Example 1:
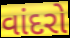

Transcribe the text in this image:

વાંદરો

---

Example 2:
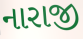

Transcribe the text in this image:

નારાજી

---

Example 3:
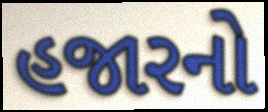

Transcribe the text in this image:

હજારનો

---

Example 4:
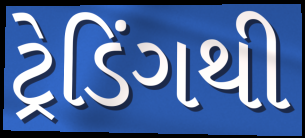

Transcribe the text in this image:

ટ્રેડિંગથી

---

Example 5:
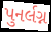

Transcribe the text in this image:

પુનર્લગ્ન